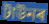
টাউনৰ